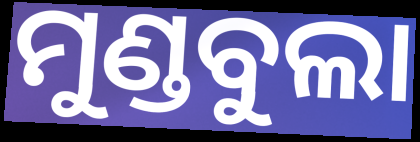
ମୁଣ୍ଡବୁଲା